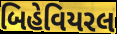
બિહેવિયરલ